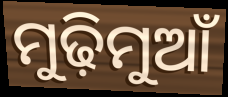
ମୁଢ଼ିମୁଆଁ